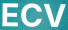
ECV